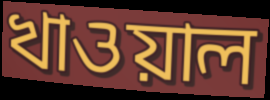
খাওয়াল